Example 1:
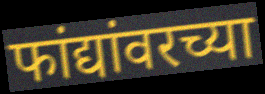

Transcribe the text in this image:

फांद्यांवरच्या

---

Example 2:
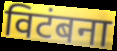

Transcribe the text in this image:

विटंबना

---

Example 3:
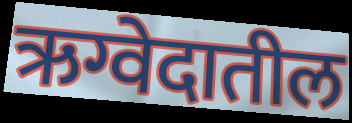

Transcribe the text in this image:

ऋग्वेदातील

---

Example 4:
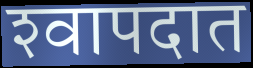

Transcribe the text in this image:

श्वापदात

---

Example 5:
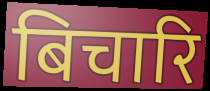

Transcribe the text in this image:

बिचारि